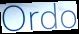
Ordo